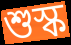
শুস্ক